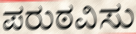
ಪರುಠವಿಸು